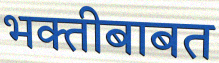
भक्तीबाबत